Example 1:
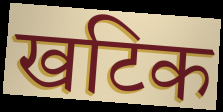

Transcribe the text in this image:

खटिक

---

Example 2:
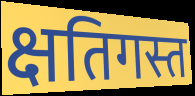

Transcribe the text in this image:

क्षतिगस्त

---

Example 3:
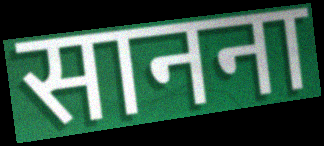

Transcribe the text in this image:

सानना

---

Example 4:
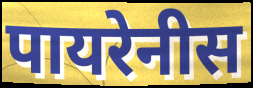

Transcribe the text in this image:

पायरेनीस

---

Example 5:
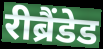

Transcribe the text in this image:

रीब्रैंडेड